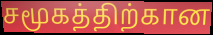
சமூகத்திற்கான